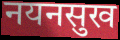
नयनसुख